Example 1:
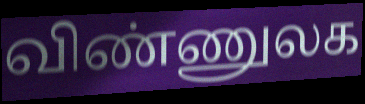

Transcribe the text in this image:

விண்ணுலக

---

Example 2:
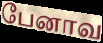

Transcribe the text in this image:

பேனாவ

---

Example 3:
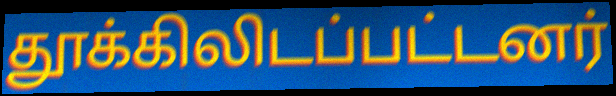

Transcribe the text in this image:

தூக்கிலிடப்பட்டனர்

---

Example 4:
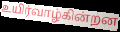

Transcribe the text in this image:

உயிர்வாழ்கின்றன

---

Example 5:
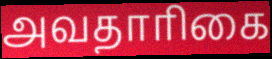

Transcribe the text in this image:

அவதாரிகை